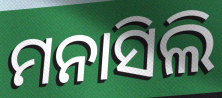
ମନାସିଲି